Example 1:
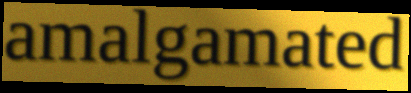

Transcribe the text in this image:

amalgamated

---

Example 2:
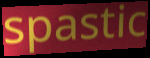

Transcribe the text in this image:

spastic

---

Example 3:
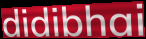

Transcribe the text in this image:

didibhai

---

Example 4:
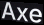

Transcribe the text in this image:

Axe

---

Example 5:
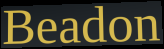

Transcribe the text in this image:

Beadon